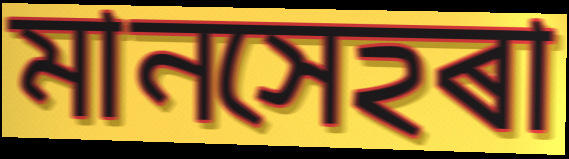
মানসেহৰা